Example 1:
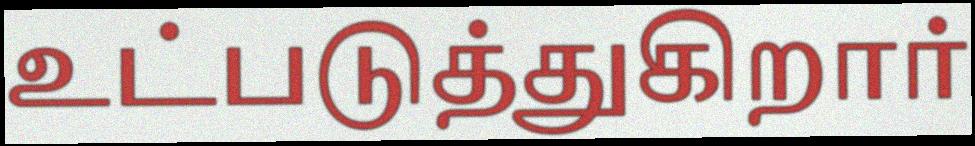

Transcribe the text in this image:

உட்படுத்துகிறார்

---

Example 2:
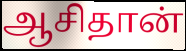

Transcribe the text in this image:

ஆசிதான்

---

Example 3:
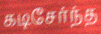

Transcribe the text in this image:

கடிசேர்ந்த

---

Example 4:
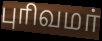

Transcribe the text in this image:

புரிவமர்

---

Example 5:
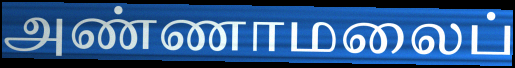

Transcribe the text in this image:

அண்ணாமலைப்